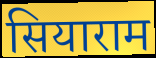
सियाराम